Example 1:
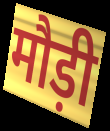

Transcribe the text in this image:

मौड़ी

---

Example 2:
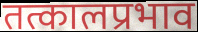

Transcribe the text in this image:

तत्कालप्रभाव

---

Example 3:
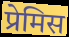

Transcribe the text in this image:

प्रेमिस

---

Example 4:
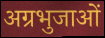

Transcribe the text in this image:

अग्रभुजाओं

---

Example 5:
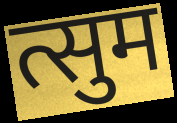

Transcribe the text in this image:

त्सुम